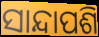
ସାନ୍ଦାପଶି